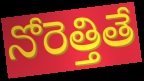
నోరెత్తితే